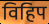
विहिप